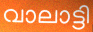
വാലാട്ടി